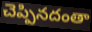
చెప్పినదంతా